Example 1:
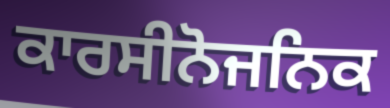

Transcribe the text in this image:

ਕਾਰਸੀਨੋਜਨਿਕ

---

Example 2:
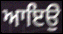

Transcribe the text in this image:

ਆਇਉ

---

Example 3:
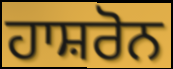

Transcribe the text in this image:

ਹਾਸ਼ਰੋਨ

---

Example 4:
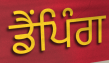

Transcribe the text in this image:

ਡੈਂਪਿੰਗ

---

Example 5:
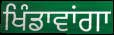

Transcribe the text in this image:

ਖਿੰਡਾਵਾਂਗਾ